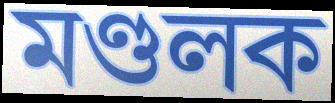
মণ্ডলক